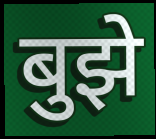
बुझे